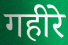
गहीरे